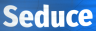
Seduce